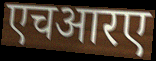
एचआरए